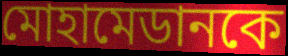
মোহামেডানকে